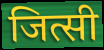
जित्सी